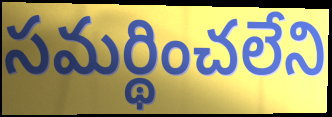
సమర్థించలేని